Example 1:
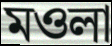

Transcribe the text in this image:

মওলা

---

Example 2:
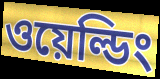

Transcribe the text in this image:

ওয়েল্ডিং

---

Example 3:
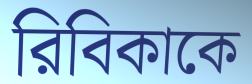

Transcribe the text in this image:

রিবিকাকে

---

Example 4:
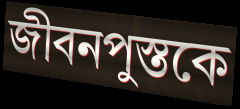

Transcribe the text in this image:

জীবনপুস্তকে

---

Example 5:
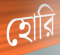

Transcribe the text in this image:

হোরি